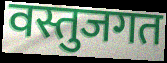
वस्तुजगत